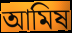
আমিষ